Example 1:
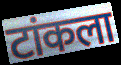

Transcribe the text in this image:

टांकला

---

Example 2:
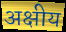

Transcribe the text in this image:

अक्षीय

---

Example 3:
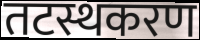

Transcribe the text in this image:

तटस्थकरण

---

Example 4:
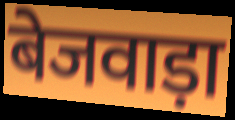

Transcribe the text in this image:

बेजवाड़ा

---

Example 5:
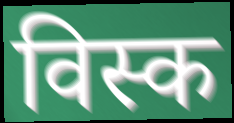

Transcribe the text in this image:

विस्क